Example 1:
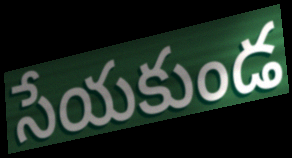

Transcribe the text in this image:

సేయకుండ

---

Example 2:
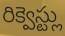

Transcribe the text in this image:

రిక్వెస్ట్లు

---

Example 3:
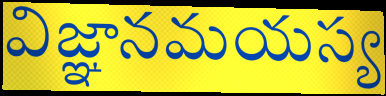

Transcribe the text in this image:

విజ్ఞానమయస్య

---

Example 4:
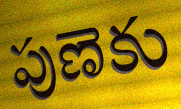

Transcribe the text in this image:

పుణెకు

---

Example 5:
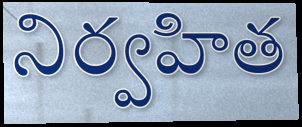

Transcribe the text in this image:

నిర్వహిత